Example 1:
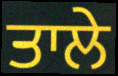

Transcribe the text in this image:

ਤਾਲੇ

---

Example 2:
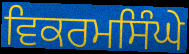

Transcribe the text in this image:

ਵਿਕਰਮਸਿੰਘੇ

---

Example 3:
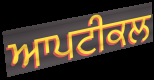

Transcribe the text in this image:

ਆਪਟੀਕਲ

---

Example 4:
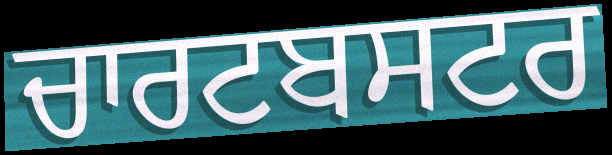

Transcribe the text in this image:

ਚਾਰਟਬਸਟਰ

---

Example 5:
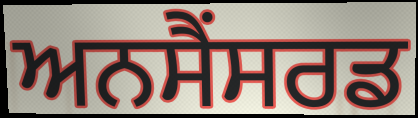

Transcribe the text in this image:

ਅਨਸੈਂਸਰਡ